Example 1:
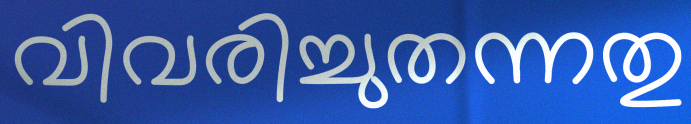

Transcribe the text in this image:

വിവരിച്ചുതന്നതു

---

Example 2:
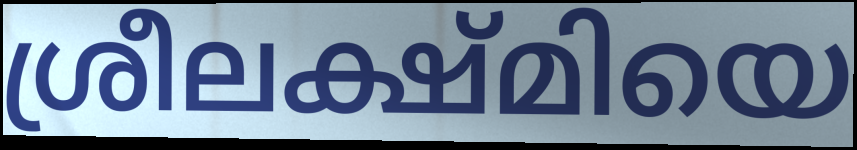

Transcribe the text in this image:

ശ്രീലക്ഷ്മിയെ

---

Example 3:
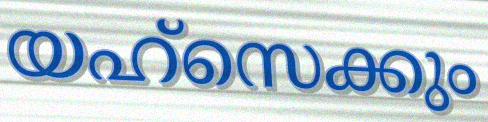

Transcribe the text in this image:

യഹ്സെക്കും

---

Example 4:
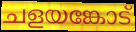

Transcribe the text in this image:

ചളയങ്കോട്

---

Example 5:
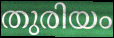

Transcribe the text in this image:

തുരിയം